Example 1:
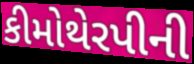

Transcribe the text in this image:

કીમોથેરપીની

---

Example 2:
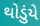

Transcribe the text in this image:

થોડુંયે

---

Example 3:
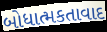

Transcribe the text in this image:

બોધાત્મકતાવાદ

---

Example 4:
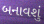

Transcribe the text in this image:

બનાવશું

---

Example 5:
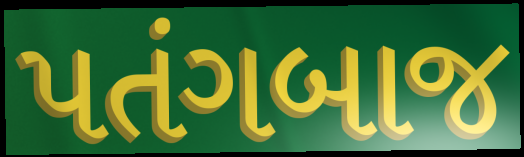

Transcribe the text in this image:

પતંગબાજ